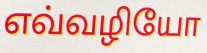
எவ்வழியோ